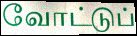
வோட்டுப்